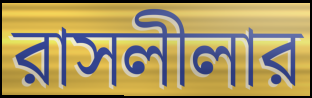
রাসলীলার